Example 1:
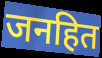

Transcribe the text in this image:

जनहित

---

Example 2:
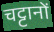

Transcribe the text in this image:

चट्टानों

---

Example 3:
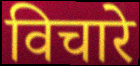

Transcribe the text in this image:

विचारे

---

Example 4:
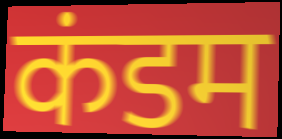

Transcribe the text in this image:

कंडम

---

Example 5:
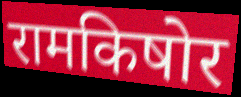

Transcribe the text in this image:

रामकिषोर